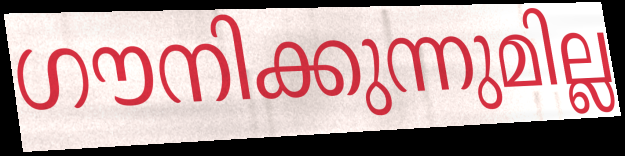
ഗൗനിക്കുന്നുമില്ല